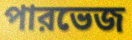
পারভেজ